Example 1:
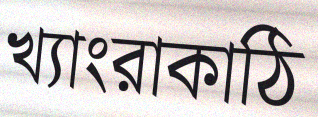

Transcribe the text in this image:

খ্যাংরাকাঠি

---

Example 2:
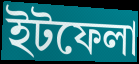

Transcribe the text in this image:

ইটফেলা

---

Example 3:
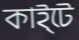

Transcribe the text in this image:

কাই্টে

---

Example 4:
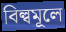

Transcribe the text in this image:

বিল্বমূলে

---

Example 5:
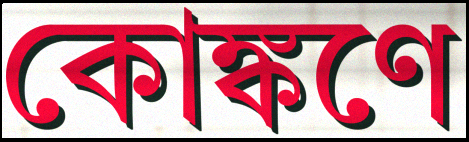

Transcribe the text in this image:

কোঙ্কণে